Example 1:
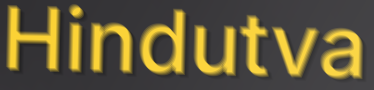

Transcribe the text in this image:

Hindutva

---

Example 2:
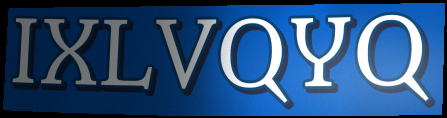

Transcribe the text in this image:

IXLVQYQ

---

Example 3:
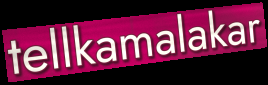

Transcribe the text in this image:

tellkamalakar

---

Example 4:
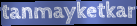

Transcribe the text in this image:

tanmayketkar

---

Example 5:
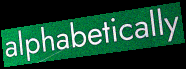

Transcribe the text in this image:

alphabetically